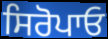
ਸਿਰੋਪਾਓ